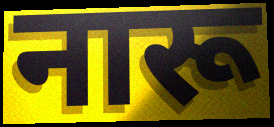
नारू